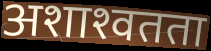
अशाश्वतता